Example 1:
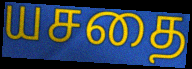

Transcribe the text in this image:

யசதை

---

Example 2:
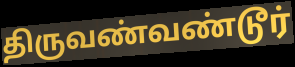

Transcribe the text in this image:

திருவண்வண்டூர்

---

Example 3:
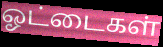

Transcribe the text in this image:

ஓட்டைகள்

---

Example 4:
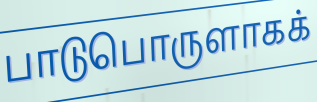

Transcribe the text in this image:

பாடுபொருளாகக்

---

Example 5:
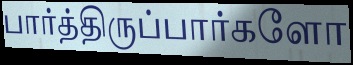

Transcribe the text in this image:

பார்த்திருப்பார்களோ